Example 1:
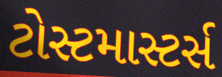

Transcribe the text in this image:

ટોસ્ટમાસ્ટર્સ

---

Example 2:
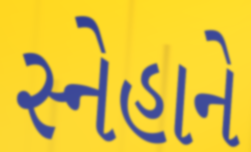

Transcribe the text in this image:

સ્નેહાને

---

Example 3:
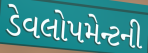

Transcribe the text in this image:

ડેવલોપમેન્ટની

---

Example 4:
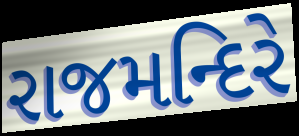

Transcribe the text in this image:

રાજમન્દિરે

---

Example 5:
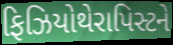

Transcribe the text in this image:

ફિઝિયોથેરાપિસ્ટને